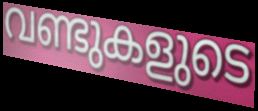
വണ്ടുകളുടെ